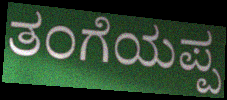
ತಂಗೆಯಪ್ಪ